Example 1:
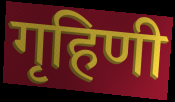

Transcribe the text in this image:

गृहिणी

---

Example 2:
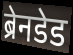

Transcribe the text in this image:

ब्रेनडेड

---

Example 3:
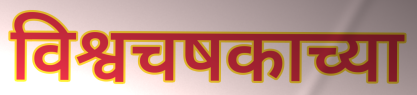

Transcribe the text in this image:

विश्वचषकाच्या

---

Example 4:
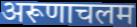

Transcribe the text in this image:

अरूणाचलम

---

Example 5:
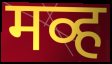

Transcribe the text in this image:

मव्ह